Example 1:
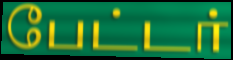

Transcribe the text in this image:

பேட்டர்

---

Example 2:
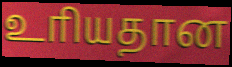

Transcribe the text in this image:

உரியதான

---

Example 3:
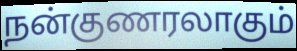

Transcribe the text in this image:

நன்குணரலாகும்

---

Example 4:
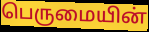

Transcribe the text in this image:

பெருமையின்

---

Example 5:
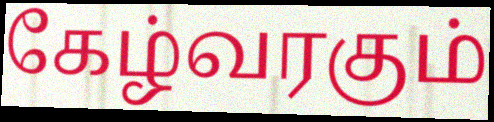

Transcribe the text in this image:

கேழ்வரகும்